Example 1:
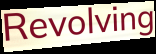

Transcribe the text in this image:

Revolving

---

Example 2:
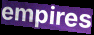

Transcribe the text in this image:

empires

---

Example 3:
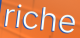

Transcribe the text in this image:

riche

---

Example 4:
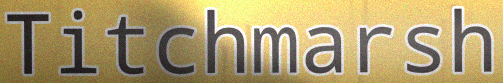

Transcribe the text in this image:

Titchmarsh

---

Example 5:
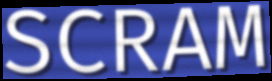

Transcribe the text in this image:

SCRAM